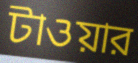
টাওয়ার